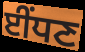
ਈਂਧਣ